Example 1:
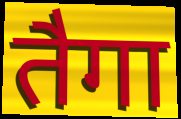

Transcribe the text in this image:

तैगा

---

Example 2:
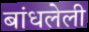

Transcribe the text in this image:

बांधलेली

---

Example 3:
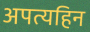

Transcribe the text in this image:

अपत्यहिन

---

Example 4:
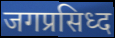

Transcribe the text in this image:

जगप्रसिध्द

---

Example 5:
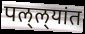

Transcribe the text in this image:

पल्ल्यांत